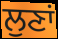
ਲੁਣਾਂ